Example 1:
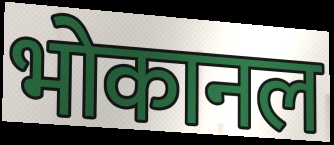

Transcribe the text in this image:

भोकानल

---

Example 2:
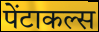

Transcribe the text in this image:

पेंटाकल्स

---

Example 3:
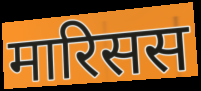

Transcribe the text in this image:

मारिसस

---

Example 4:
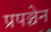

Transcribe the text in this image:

प्रपञ्चेन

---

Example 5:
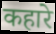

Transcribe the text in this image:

कहारे